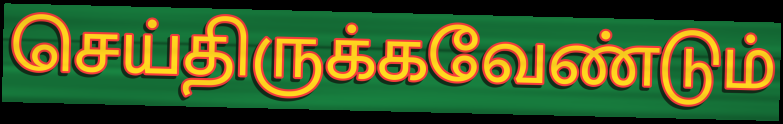
செய்திருக்கவேண்டும்